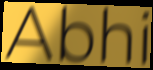
Abhi